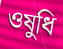
ওষুধি